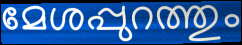
മേശപ്പുറത്തും